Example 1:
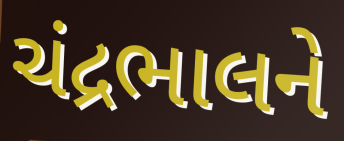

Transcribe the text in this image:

ચંદ્રભાલને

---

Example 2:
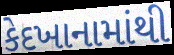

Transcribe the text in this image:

કેદખાનામાંથી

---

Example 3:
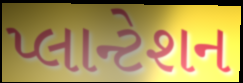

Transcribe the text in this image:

પ્લાન્ટેશન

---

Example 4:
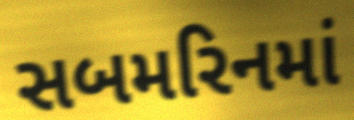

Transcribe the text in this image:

સબમરિનમાં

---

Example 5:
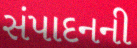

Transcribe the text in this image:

સંપાદનની